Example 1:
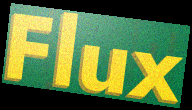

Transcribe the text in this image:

Flux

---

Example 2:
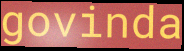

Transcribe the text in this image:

govinda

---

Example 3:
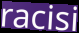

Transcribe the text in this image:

racisi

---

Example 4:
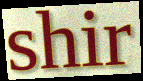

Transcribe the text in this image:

shir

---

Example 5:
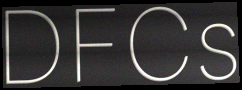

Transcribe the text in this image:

DFCs